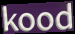
kood